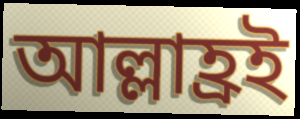
আল্লাহ্রই